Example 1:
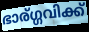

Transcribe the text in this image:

ഭാര്ഗ്ഗവിക്ക്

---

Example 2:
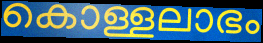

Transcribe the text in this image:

കൊള്ളലാഭം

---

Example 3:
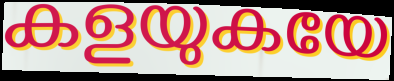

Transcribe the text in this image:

കളയുകയേ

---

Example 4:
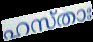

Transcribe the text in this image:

ഹസ്താഃ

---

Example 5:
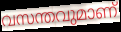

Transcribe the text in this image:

വസന്തവുമാണ്